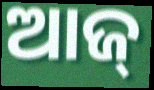
ଆଜ୍